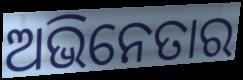
ଅଭିନେତାର